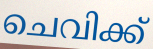
ചെവിക്ക്